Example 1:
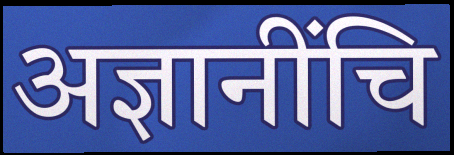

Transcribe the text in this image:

अज्ञानींचि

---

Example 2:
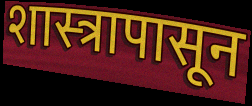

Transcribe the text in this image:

शास्त्रापासून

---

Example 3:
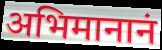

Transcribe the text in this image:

अभिमानानं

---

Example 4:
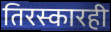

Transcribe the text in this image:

तिरस्कारही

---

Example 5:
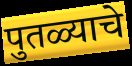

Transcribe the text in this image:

पुतळ्याचे